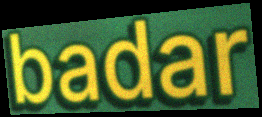
badar